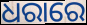
ଧରାରେ